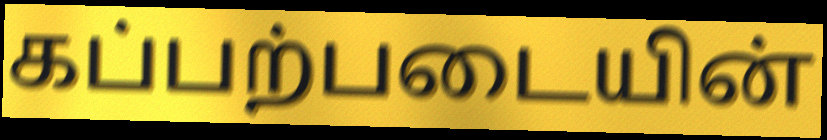
கப்பற்படையின்